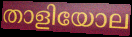
താളിയോല